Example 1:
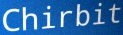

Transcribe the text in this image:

Chirbit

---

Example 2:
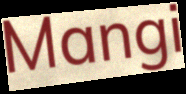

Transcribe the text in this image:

Mangi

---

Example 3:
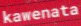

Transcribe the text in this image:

kawenata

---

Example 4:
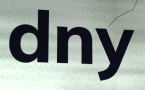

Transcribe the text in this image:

dny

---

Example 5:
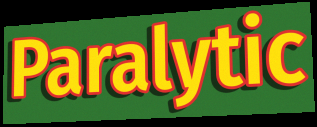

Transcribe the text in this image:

Paralytic